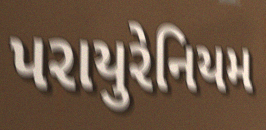
પરાયુરેનિયમ